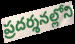
ప్రదర్శనల్లోని